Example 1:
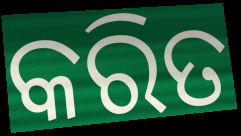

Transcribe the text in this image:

କରିତ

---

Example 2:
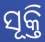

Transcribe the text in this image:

ସୂକ୍ତି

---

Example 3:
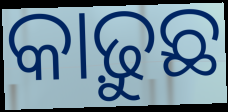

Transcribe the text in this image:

କାଢ଼ୁଛ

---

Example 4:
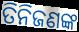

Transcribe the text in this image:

ତିନିଜଣଙ୍କ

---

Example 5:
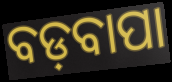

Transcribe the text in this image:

ବଡ଼ବାପା